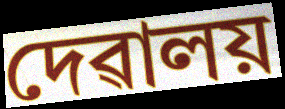
দেৱালয়